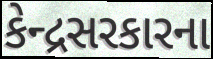
કેન્દ્રસરકારના